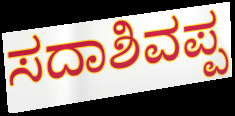
ಸದಾಶಿವಪ್ಪ